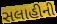
સલાહીની